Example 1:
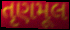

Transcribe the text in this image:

તૃણમૂલ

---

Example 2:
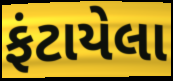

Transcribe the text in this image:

ફંટાયેલા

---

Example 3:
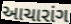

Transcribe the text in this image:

આચારાંગ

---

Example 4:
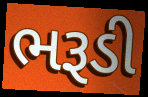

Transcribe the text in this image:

ભરૂડી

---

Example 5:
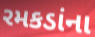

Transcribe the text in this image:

રમકડાંના